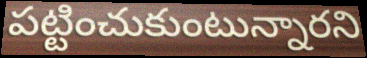
పట్టించుకుంటున్నారని